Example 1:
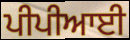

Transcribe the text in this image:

ਪੀਪੀਆਈ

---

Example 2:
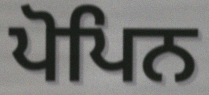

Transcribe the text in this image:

ਪੋਪਿਨ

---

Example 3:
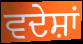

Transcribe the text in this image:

ਵਦੇਸ਼ਾਂ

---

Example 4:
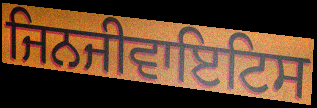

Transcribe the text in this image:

ਜਿਨਜੀਵਾਇਟਿਸ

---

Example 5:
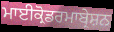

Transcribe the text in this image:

ਮਾਈਕ੍ਰੋਡਰਮਾਬ੍ਰੇਸ਼ਨ